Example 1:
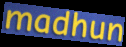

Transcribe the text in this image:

madhun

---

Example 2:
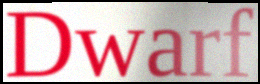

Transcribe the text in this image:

Dwarf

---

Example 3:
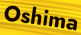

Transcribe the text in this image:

Oshima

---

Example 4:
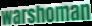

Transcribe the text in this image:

warshoman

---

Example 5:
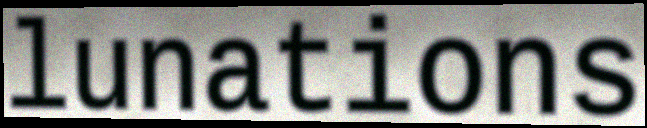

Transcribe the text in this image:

lunations